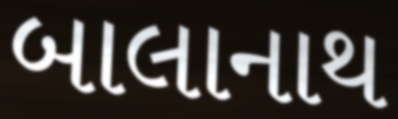
બાલાનાથ